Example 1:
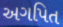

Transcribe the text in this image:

અગપિત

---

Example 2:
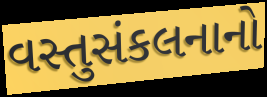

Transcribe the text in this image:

વસ્તુસંકલનાનો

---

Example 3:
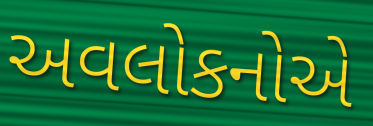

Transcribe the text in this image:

અવલોકનોએ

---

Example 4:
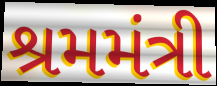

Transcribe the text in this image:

શ્રમમંત્રી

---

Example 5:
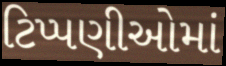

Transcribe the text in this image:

ટિપ્પણીઓમાં